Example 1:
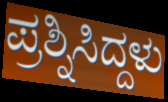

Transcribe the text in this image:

ಪ್ರಶ್ನಿಸಿದ್ದಳು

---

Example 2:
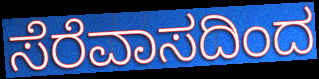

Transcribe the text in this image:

ಸೆರೆವಾಸದಿಂದ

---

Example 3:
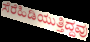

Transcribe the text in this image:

ಸೆರೆಹಿಡಿಯುತ್ತಿದ್ದವು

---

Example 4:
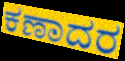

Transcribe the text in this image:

ಕಣಾದರ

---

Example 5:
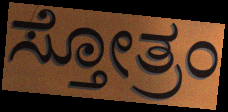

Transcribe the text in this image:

ಸ್ತೋತ್ರಂ